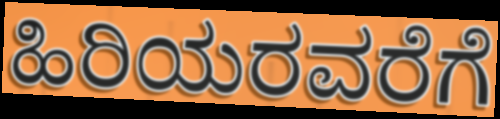
ಹಿರಿಯರವರೆಗೆ